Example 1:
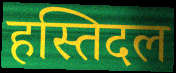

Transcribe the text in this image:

हस्तिदल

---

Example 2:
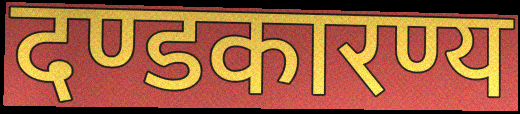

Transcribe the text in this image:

दण्डकारण्य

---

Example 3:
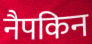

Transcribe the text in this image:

नैपकिन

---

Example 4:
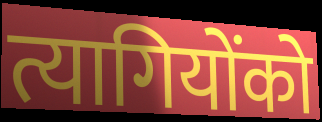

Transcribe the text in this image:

त्यागियोंको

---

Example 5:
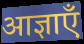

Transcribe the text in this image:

आज्ञाएँ